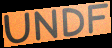
UNDF